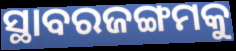
ସ୍ଥାବରଜଙ୍ଗମକୁ